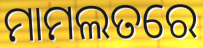
ମାମଲତରେ